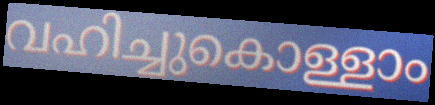
വഹിച്ചുകൊള്ളാം